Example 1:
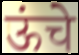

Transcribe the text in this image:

ऊंचे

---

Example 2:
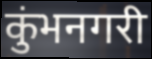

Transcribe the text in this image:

कुंभनगरी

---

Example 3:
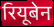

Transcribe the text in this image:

रियूबेन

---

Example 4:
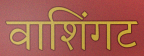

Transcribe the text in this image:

वाशिंगट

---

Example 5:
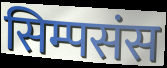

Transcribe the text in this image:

सिम्पसंस